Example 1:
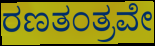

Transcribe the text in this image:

ರಣತಂತ್ರವೇ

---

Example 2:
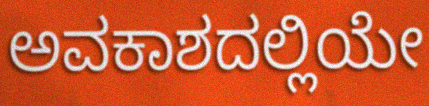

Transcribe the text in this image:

ಅವಕಾಶದಲ್ಲಿಯೇ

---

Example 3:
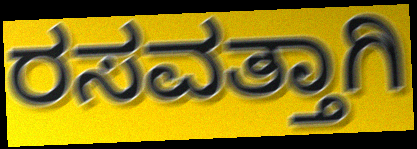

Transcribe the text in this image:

ರಸವತ್ತಾಗಿ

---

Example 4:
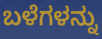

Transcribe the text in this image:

ಬಳೆಗಳನ್ನು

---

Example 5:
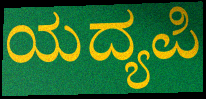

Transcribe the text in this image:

ಯದ್ಯಪಿ